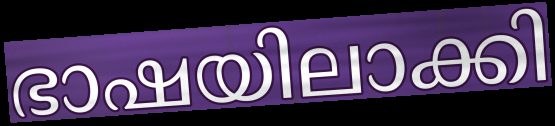
ഭാഷയിലാക്കി